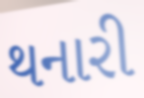
થનારી